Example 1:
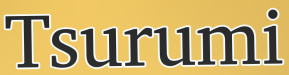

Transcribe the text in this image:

Tsurumi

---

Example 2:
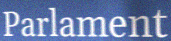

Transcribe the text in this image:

Parlament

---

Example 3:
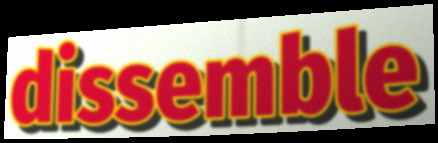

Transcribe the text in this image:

dissemble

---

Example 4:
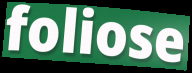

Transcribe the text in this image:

foliose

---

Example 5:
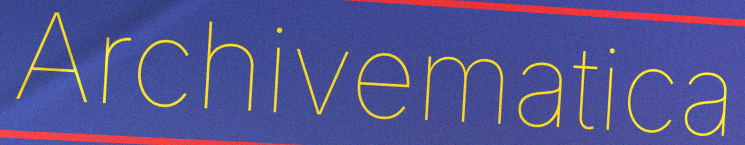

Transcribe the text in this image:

Archivematica